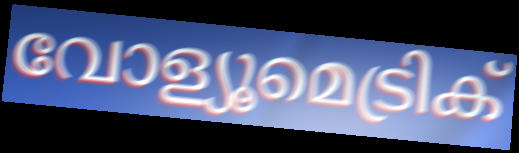
വോള്യൂമെട്രിക്